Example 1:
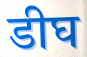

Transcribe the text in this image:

डीघ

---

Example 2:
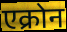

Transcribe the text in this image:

एक्रोन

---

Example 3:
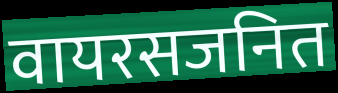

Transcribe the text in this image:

वायरसजनित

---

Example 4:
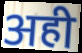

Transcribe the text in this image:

अही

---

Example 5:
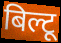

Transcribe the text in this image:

बिल्टू